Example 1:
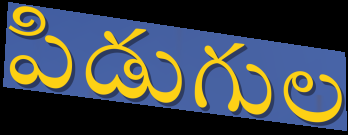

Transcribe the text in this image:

పిడుగుల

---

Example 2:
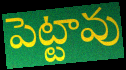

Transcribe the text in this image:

పెట్టావు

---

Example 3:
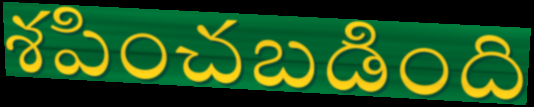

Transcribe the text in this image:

శపించబడింది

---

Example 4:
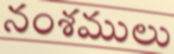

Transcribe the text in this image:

నంశములు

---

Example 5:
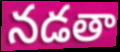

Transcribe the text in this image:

నడతా